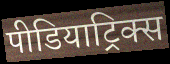
पीडियाट्रिक्स